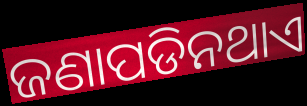
ଜଣାପଡିନଥାଏ